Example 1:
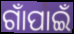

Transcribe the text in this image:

ଗାଁପାଇଁ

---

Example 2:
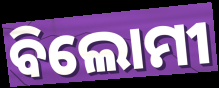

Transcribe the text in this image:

ବିଲୋମୀ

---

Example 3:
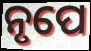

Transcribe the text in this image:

ନୃପେ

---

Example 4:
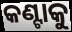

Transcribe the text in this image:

କଣ୍ଟାକୁ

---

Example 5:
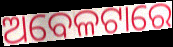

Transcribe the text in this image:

ଅବେଳଟାରେ